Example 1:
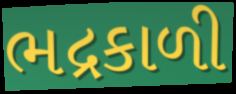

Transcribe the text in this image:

ભદ્રકાળી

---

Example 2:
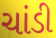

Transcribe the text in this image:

ચાંડી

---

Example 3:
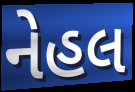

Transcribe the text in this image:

નેહલ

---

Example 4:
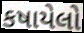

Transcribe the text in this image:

કષાયેલો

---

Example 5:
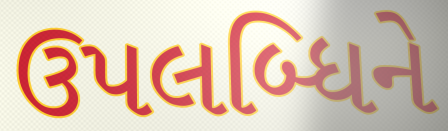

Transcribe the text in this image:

ઉપલબ્ધિને